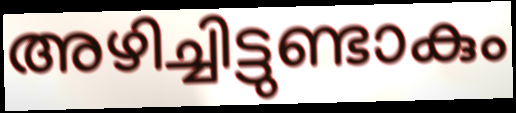
അഴിച്ചിട്ടുണ്ടാകും